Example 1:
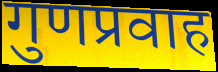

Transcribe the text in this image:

गुणप्रवाह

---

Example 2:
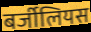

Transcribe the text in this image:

बर्जीलियस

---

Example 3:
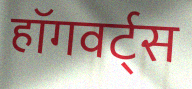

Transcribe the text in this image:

हॉगवर्ट्स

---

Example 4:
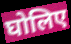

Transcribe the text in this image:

घोलिए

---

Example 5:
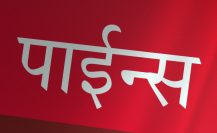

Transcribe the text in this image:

पाईन्स